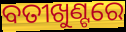
ବତୀଖୁଣ୍ଟରେ